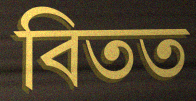
বিতত